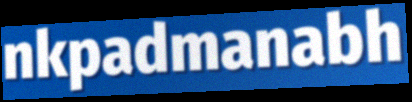
nkpadmanabh